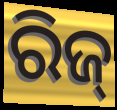
ରିଜ୍